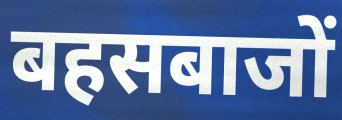
बहसबाजों